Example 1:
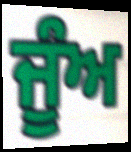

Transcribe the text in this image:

ਜੂੰਅ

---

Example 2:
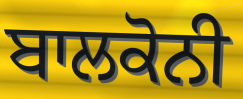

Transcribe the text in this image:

ਬਾਲਕੋਨੀ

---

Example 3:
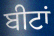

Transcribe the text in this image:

ਬੀਟਾਂ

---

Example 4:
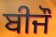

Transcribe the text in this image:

ਬੀਜੌ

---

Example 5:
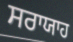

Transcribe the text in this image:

ਸਰਾਯਾਹ